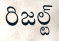
రిజల్ట్